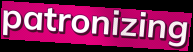
patronizing